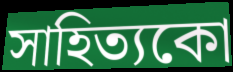
সাহিত্যকো